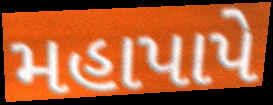
મહાપાપે